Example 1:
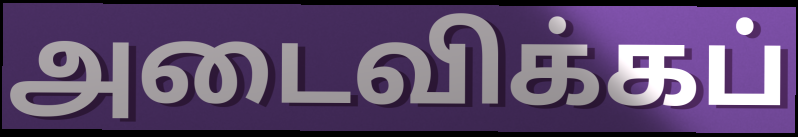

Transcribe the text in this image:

அடைவிக்கப்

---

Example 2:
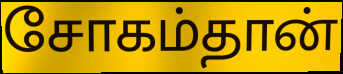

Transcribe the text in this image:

சோகம்தான்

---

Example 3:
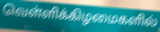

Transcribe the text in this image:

வெள்ளிக்கிழமைகளில்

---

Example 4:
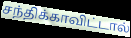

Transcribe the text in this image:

சந்திக்காவிட்டால்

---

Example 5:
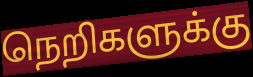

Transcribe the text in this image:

நெறிகளுக்கு